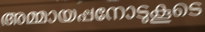
അമ്മായപ്പനോടുകൂടെ